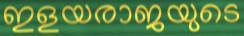
ഇളയരാജയുടെ